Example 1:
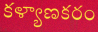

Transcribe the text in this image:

కళ్యాణకరం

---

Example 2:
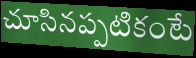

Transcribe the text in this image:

చూసినప్పటికంటే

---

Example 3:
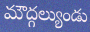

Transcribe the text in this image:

మౌద్గల్యుండు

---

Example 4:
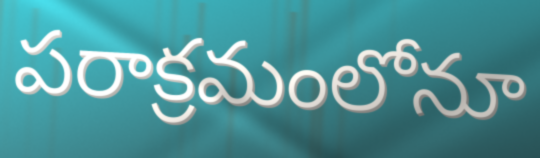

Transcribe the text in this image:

పరాక్రమంలోనూ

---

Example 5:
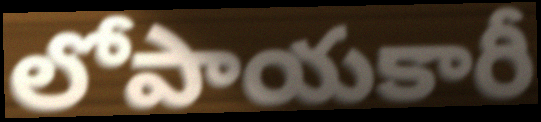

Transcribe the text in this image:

లోపాయకారీ